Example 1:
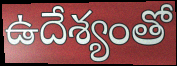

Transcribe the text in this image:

ఉదేశ్యంతో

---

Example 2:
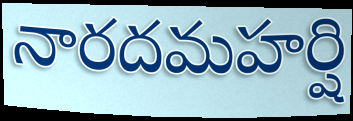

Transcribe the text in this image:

నారదమహర్షి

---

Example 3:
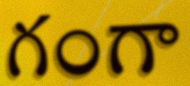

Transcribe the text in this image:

గంగా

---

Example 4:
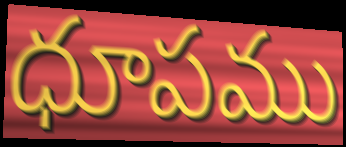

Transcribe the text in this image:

ధూపము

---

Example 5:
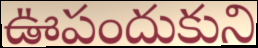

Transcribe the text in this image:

ఊపందుకుని